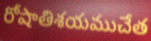
రోషాతిశయముచేత